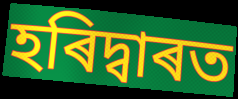
হৰিদ্বাৰত